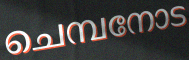
ചെമ്പനോട